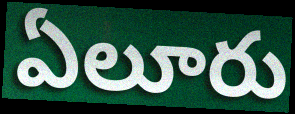
ఏలూరు